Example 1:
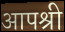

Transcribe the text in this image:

आपश्री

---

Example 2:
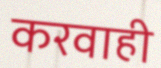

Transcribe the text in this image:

करवाही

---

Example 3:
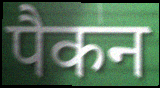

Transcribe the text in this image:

पैकन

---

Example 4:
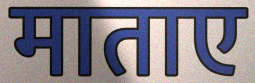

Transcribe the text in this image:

माताए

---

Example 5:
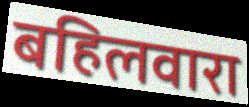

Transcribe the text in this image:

बहिलवारा